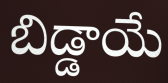
బిడ్డాయే